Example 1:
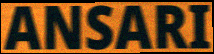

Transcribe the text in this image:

ANSARI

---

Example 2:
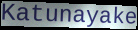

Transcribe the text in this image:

Katunayake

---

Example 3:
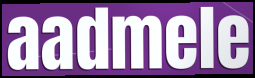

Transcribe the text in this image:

aadmele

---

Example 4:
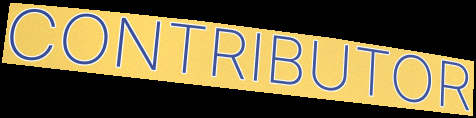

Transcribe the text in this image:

CONTRIBUTOR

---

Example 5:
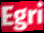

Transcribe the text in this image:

Egri